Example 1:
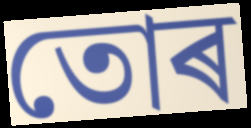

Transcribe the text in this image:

তোৰ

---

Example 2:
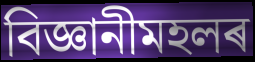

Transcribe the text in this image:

বিজ্ঞানীমহলৰ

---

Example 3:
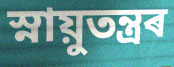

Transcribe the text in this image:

স্নায়ুতন্ত্ৰৰ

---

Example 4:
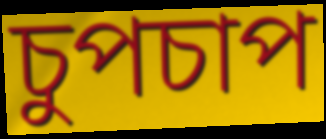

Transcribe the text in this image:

চুপচাপ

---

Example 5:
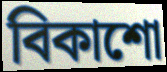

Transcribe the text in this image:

বিকাশো